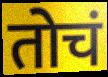
तोचं